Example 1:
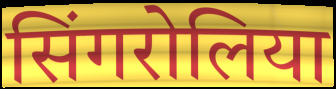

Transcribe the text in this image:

सिंगरोलिया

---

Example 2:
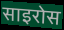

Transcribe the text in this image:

साइरोस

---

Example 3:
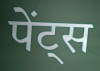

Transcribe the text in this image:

पेंट्स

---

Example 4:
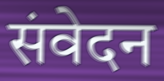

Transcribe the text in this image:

संवेदन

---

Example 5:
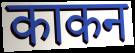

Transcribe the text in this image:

काकन